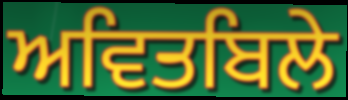
ਅਵਿਤਬਿਲੇ